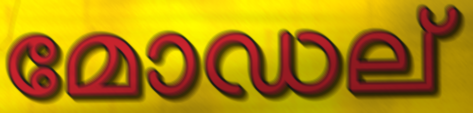
മോഡല്